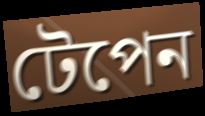
টেপেন